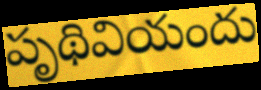
పృథివియందు